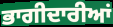
ਭਾਗੀਦਾਰੀਆਂ